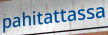
pahitattassa